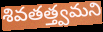
శివతత్త్వమని